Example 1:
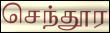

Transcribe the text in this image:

செந்தூர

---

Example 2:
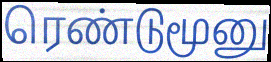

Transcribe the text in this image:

ரெண்டுமூனு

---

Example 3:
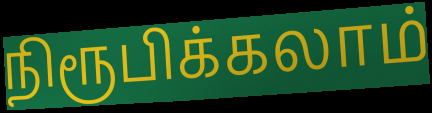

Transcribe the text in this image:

நிரூபிக்கலாம்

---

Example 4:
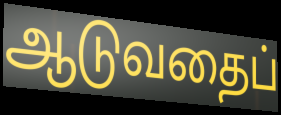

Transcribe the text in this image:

ஆடுவதைப்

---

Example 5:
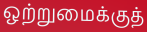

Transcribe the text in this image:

ஒற்றுமைக்குத்